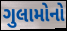
ગુલામોનો